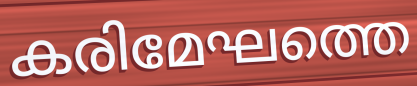
കരിമേഘത്തെ